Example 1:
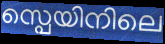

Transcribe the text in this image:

സ്പെയിനിലെ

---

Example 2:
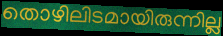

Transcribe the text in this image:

തൊഴിലിടമായിരുന്നില്ല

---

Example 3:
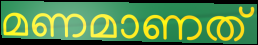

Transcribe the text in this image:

മണമാണത്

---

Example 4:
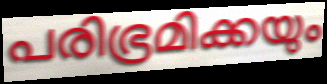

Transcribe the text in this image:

പരിഭ്രമിക്കയും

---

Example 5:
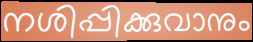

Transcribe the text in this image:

നശിപ്പിക്കുവാനും